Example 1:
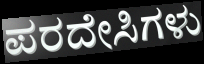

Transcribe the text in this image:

ಪರದೇಸಿಗಳು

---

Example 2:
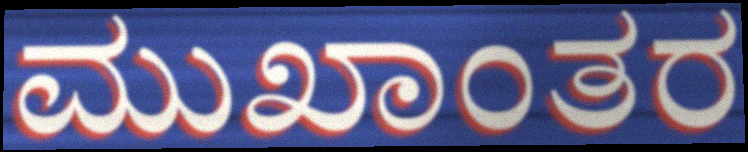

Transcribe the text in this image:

ಮುಖಾಂತರ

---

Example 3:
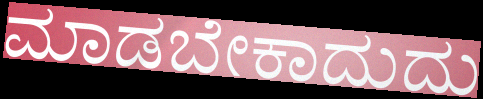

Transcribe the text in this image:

ಮಾಡಬೇಕಾದುದು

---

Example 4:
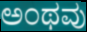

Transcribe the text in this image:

ಅಂಥವು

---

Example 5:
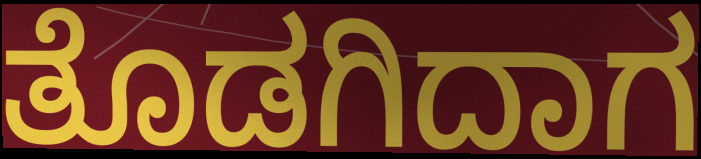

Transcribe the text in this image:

ತೊಡಗಿದಾಗ